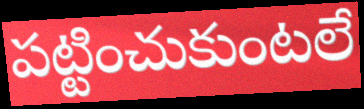
పట్టించుకుంటలే